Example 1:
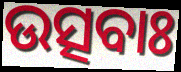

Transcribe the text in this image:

ଉତ୍ସବାଃ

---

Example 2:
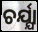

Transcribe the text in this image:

ଚର୍ଯ୍ଯା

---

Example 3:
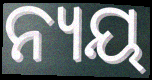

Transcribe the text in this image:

ନ୍ୟୟ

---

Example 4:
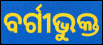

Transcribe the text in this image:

ବର୍ଗୀଭୁକ୍ତ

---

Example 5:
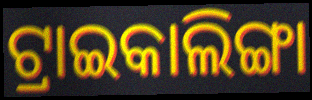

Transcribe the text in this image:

ଟ୍ରାଇକାଲିଙ୍ଗା